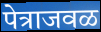
पेत्राजवळ